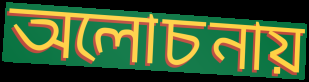
অলোচনায়